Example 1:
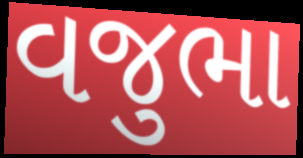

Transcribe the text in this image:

વજુભા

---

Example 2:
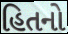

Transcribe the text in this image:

હિતનો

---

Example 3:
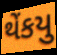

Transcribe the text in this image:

થેંકયુ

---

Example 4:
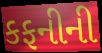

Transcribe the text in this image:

કફનીની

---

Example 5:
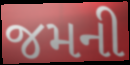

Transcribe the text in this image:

જમની